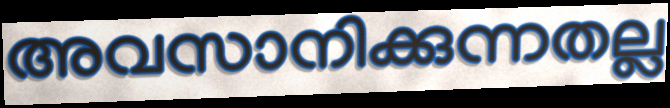
അവസാനിക്കുന്നതല്ല